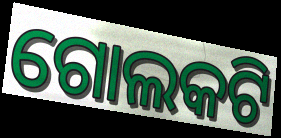
ଗୋଲକଟି